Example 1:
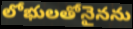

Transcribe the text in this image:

లోభులతోనైనను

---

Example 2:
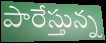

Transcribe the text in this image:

పారేస్తున్న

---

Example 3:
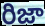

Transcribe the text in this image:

రిజా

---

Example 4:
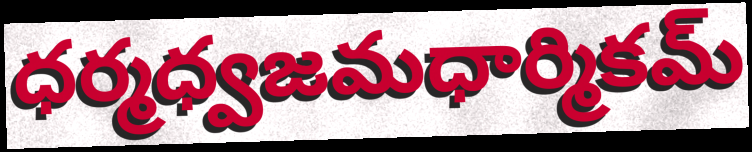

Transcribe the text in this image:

ధర్మధ్వజమధార్మికమ్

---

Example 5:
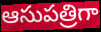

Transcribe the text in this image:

ఆసుపత్రిగా